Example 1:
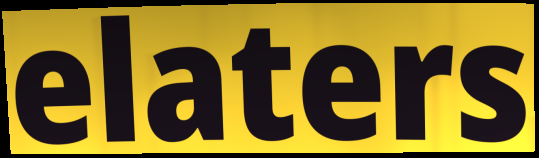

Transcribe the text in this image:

elaters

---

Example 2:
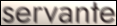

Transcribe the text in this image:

servante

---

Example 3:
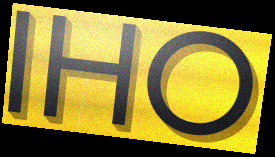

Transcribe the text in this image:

IHO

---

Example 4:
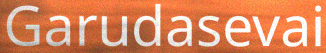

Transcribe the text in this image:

Garudasevai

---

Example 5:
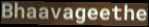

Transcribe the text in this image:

Bhaavageethe